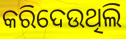
କରିଦେଉଥିଲି